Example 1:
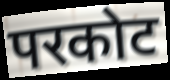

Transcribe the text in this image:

परकोट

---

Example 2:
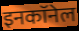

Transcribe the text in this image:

इनकॉनेल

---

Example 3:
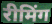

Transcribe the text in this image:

रीमिंग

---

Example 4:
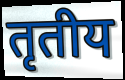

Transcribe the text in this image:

तृतीय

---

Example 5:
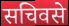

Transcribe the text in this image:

सचिवसे